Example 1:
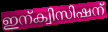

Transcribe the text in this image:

ഇന്ക്വിസിഷന്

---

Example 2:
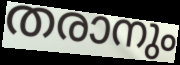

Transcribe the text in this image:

തരാനും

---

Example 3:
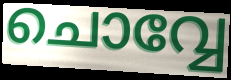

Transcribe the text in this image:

ചൊവ്വേ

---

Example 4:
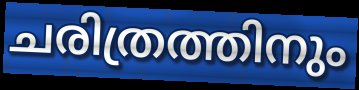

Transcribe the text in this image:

ചരിത്രത്തിനും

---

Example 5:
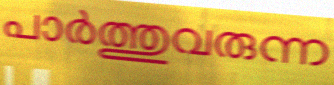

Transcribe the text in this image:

പാർത്തുവരുന്ന